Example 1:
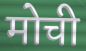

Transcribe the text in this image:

मोची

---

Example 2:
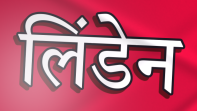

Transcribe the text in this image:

लिंडेन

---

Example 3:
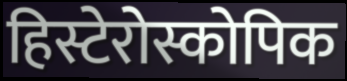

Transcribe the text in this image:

हिस्टेरोस्कोपिक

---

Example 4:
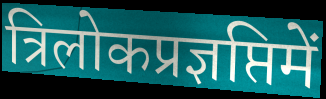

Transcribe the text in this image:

त्रिलोकप्रज्ञप्तिमें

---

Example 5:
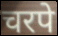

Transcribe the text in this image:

चरपे